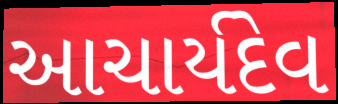
આચાર્યદેવ